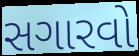
સગારવો